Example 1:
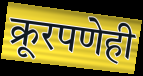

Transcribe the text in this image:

क्रूरपणेही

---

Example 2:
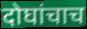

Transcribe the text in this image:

दोघांचाच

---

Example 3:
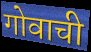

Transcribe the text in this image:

गोवाची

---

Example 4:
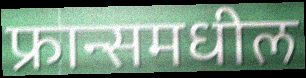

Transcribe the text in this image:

फ्रान्समधील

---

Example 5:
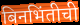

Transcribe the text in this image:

बिनभिंतीची